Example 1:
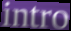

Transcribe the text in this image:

intro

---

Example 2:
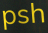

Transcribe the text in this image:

psh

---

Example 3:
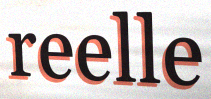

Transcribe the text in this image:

reelle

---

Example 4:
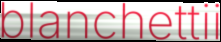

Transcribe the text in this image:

blanchettii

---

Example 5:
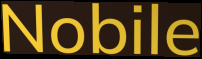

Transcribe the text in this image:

Nobile